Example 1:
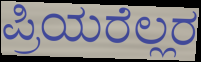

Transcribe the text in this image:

ಪ್ರಿಯರೆಲ್ಲರ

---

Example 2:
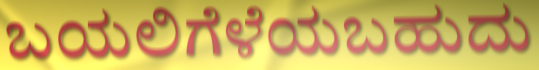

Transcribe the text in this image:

ಬಯಲಿಗೆಳೆಯಬಹುದು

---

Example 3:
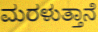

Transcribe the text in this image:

ಮರಳುತ್ತಾನೆ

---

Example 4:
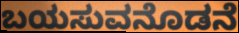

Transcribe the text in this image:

ಬಯಸುವನೊಡನೆ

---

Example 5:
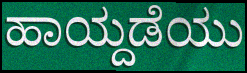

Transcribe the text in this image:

ಹಾಯ್ದಡೆಯು